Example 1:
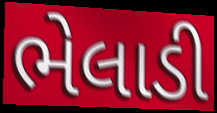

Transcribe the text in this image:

ભેલાડી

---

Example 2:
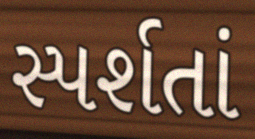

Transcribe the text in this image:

સ્પર્શતાં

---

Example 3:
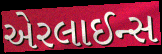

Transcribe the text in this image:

એરલાઈન્સ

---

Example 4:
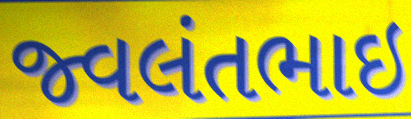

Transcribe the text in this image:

જ્વલંતભાઇ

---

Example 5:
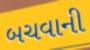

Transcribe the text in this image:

બચવાની